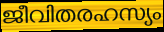
ജീവിതരഹസ്യം